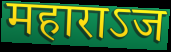
महाराऽज